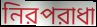
নিরপরাধা